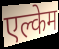
एल्केम